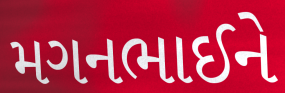
મગનભાઈને